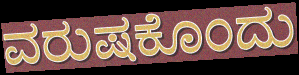
ವರುಷಕೊಂದು